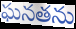
ఘనతను